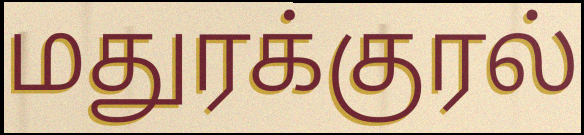
மதுரக்குரல்